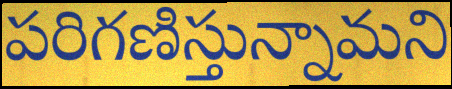
పరిగణిస్తున్నామని